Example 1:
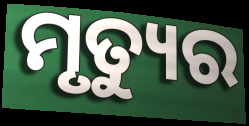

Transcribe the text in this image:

ମୃତ୍ୟୁର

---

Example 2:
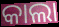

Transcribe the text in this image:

କାଲା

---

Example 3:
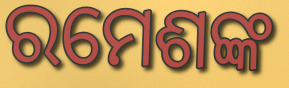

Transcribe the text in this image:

ରମେଶଙ୍କ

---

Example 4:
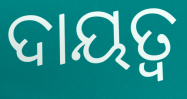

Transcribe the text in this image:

ଦାୟତ୍ବ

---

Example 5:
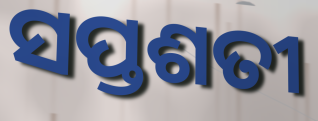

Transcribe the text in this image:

ସପ୍ତଶତୀ